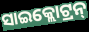
ସାଇକ୍ଲୋଟ୍ରନ୍